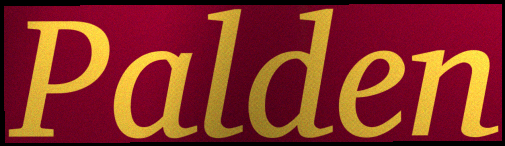
Palden